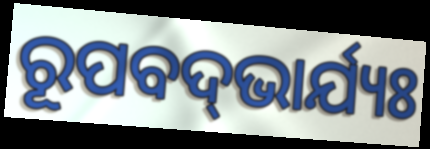
ରୂପବଦ୍‌ଭାର୍ଯ୍ୟଃ